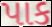
પાક